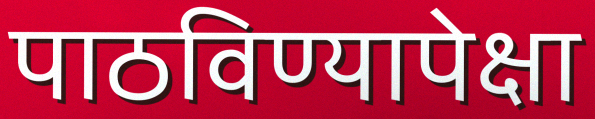
पाठविण्यापेक्षा